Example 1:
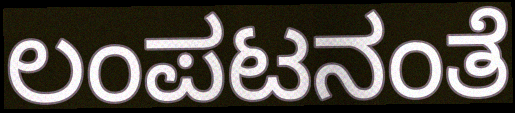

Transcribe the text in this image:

ಲಂಪಟನಂತೆ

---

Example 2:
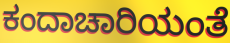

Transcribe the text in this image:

ಕಂದಾಚಾರಿಯಂತೆ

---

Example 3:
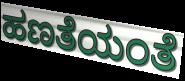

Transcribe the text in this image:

ಹಣತೆಯಂತೆ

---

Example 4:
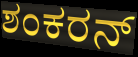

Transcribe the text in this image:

ಶಂಕರನ್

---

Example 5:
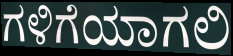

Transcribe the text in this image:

ಗಳಿಗೆಯಾಗಲಿ